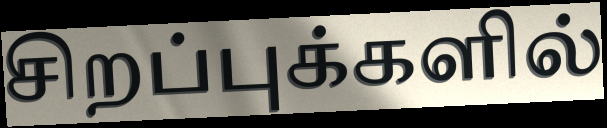
சிறப்புக்களில்